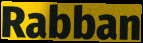
Rabban